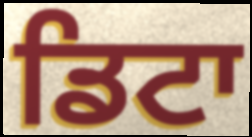
ਡਿਟਾ